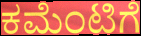
ಕಮೆಂಟಿಗೆ